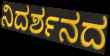
ನಿದರ್ಶನದ